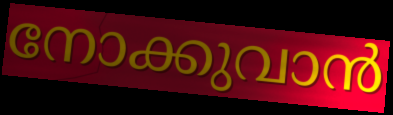
നോക്കുവാൻ